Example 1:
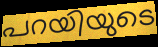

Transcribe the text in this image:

പറയിയുടെ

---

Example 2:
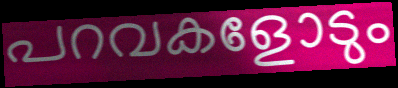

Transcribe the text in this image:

പറവകളോടും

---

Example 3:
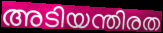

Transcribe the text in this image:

അടിയന്തിരത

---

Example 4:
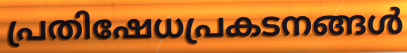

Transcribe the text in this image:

പ്രതിഷേധപ്രകടനങ്ങൾ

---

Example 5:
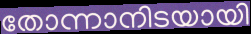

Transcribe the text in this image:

തോന്നാനിടയായി